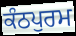
ਕੰਠਪੁਰਮ